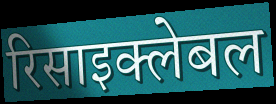
रिसाइक्लेबल